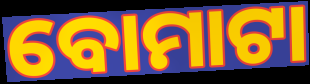
ବୋମାଟା